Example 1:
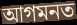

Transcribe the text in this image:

আগমনত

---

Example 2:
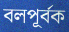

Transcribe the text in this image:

বলপূৰ্বক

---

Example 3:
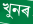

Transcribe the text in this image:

খুনৰ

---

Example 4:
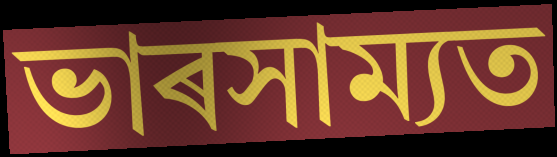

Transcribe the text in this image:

ভাৰসাম্যত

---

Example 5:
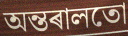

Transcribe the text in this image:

অন্তৰালতো